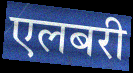
एलबरी